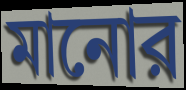
মানোর